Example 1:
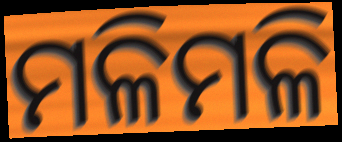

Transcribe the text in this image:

ମଳିମଳି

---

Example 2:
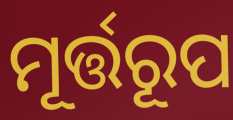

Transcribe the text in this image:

ମୂର୍ତ୍ତରୂପ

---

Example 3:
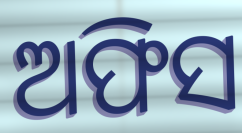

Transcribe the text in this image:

ଅଫିସ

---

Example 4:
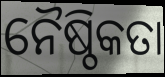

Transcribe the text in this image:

ନୈଷ୍ଠିକତା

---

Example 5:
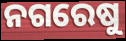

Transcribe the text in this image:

ନଗରେଷୁ